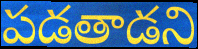
పడతాడని